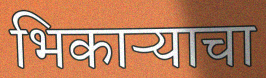
भिकाऱ्याचा